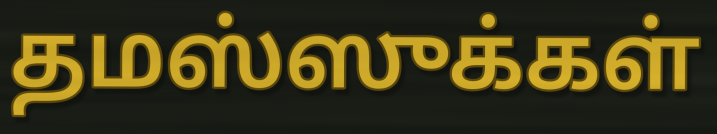
தமஸ்ஸுக்கள்